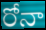
రోనా